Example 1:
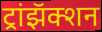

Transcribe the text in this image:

ट्रांझॅक्शन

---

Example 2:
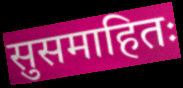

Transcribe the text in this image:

सुसमाहितः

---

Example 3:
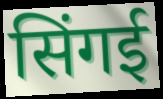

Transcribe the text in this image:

सिंगई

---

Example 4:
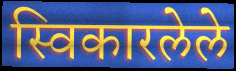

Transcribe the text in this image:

स्विकारलेले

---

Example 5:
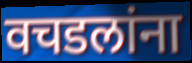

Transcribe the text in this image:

वचडलांना